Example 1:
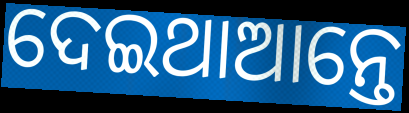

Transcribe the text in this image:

ଦେଇଥାଆନ୍ତେ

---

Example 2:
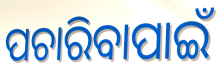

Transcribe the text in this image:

ପଚାରିବାପାଇଁ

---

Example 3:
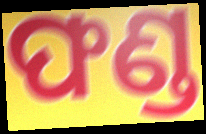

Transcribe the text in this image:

ଫଣ୍ଡ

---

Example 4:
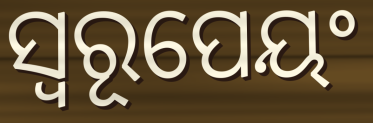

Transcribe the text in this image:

ସ୍ୱରୂପେୟଂ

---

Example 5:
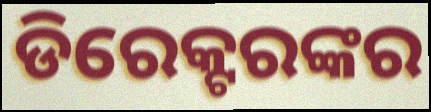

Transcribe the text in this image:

ଡିରେକ୍ଟରଙ୍କର